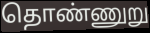
தொண்ணுறு